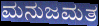
ಮನುಜಮತ